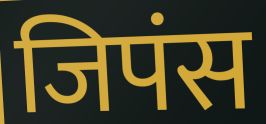
जिपंस